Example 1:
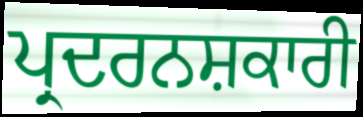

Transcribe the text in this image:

ਪ੍ਰਦਰਨਸ਼ਕਾਰੀ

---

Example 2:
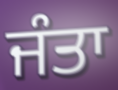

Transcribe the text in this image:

ਜੰਤਾ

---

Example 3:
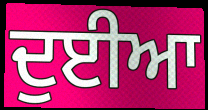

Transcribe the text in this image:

ਦੁਈਆ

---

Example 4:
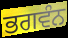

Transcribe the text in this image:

ਭਗਵੰਨ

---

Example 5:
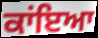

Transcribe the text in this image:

ਕਾਂਇਆ